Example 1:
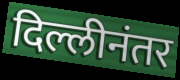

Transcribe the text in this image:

दिल्लीनंतर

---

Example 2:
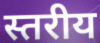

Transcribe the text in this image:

स्तरीय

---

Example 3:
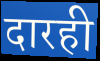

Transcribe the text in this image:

दारही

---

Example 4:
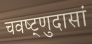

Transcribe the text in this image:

चवष्ट्णुदासां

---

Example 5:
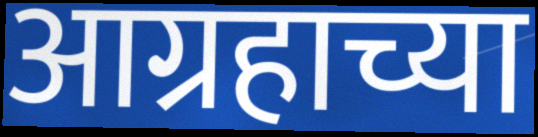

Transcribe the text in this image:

आग्रहाच्या